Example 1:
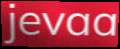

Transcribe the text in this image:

jevaa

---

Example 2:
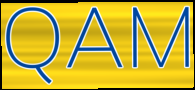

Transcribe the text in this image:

QAM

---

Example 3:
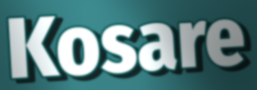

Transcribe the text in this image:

Kosare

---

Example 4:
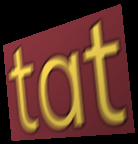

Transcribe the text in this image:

tat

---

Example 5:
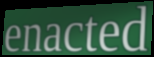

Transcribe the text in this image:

enacted